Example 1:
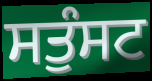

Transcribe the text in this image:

ਸਤੁੰਸਟ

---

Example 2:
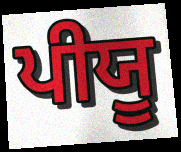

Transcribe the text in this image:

ਪੀਯੂ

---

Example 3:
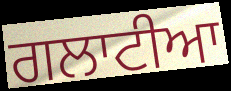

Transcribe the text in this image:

ਗਲਾਟੀਆ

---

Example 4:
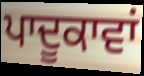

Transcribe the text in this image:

ਪਾਦੂਕਾਵਾਂ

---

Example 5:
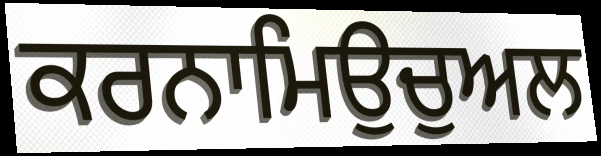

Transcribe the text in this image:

ਕਰਨਾਮਿਉਚੁਅਲ